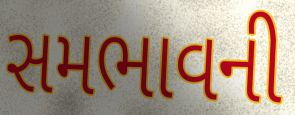
સમભાવની